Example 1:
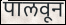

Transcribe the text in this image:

पालवून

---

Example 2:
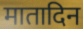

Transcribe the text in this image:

मातादिन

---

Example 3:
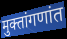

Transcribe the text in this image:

मुक्तांगणांत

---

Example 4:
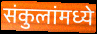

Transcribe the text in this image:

संकुलांमध्ये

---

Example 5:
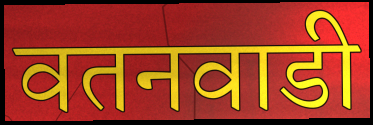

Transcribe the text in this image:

वतनवाडी